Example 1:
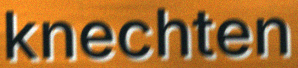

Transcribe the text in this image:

knechten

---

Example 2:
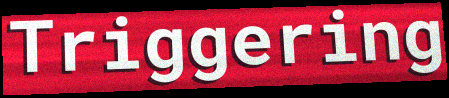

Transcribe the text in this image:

Triggering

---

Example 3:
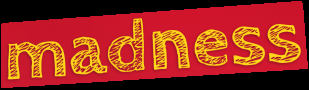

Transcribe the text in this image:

madness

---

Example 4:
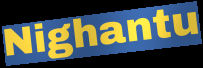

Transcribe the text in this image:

Nighantu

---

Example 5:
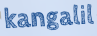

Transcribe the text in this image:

kangalil